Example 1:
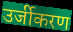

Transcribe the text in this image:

उर्जीकरण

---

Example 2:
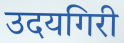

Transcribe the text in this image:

उदयगिरी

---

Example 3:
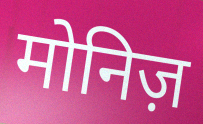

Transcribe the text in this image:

मोनिज़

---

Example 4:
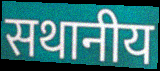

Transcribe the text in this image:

सथानीय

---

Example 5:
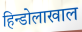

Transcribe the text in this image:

हिन्डोलाखाल